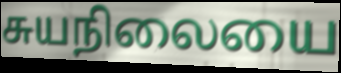
சுயநிலையை